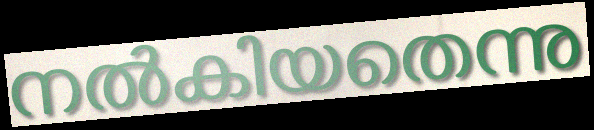
നൽകിയതെന്നു